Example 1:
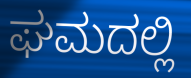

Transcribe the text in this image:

ಘಮದಲ್ಲಿ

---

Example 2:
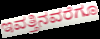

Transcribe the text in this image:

ಇವತ್ತಿನವರೆಗೂ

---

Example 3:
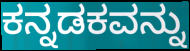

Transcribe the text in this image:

ಕನ್ನಡಕವನ್ನು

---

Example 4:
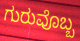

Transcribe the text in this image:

ಗುರುವೊಬ್ಬ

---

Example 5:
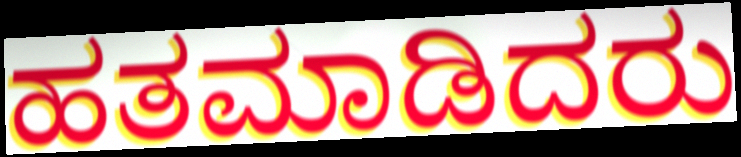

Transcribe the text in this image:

ಹತಮಾಡಿದರು